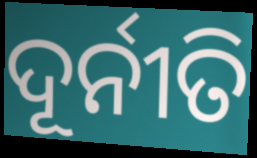
ଦୂର୍ନୀତି